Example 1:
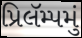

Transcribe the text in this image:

પ્રિલૅમ્પમું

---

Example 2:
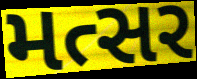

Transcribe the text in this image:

મત્સર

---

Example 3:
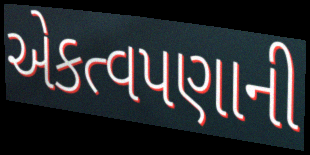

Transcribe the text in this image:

એકત્વપણાની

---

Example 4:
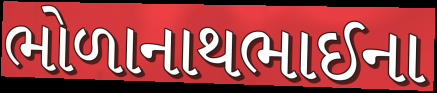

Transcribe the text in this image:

ભોળાનાથભાઈના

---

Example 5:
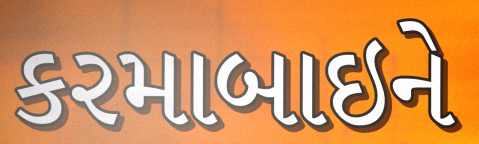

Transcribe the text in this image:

કરમાબાઇને